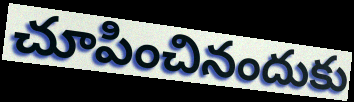
చూపించినందుకు